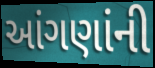
આંગણાંની